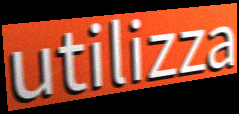
utilizza